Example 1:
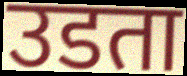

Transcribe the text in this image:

उडता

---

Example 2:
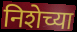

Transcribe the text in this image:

निशेच्या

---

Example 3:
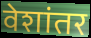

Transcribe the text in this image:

वेशांतर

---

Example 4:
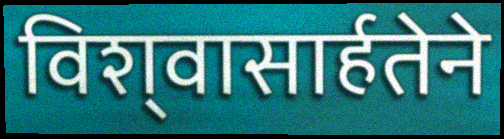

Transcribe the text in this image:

विश्वासार्हतेने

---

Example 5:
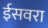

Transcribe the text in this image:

ईसवरा